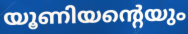
യൂണിയന്റെയും